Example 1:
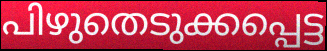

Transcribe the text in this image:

പിഴുതെടുക്കപ്പെട്ട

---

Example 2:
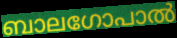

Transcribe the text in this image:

ബാലഗോപാൽ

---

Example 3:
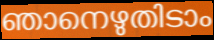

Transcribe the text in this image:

ഞാനെഴുതിടാം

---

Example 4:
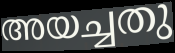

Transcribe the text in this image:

അയച്ചതു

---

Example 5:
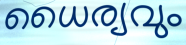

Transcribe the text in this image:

ധൈര്യവും